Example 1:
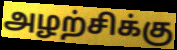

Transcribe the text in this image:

அழற்சிக்கு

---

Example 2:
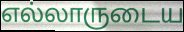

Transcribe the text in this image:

எல்லாருடைய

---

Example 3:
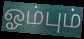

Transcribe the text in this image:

ஓம்பும்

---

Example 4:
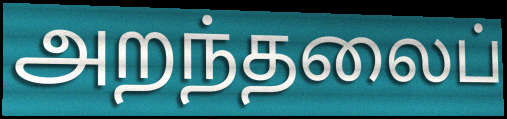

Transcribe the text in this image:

அறந்தலைப்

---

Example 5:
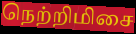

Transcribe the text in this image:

நெற்றிமிசை